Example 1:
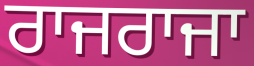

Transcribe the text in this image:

ਰਾਜਰਾਜਾ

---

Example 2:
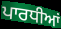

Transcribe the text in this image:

ਪਾਰਧੀਆਂ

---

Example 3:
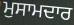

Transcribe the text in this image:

ਮੁਸਾਮਦਾਰ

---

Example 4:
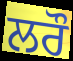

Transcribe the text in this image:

ਲਰੌ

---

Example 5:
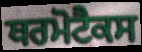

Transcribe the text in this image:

ਥਰਮੋਟੈਕਸ